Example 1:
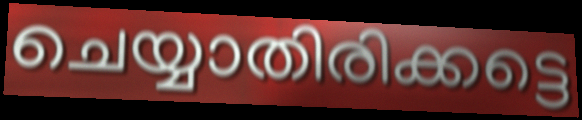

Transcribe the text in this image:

ചെയ്യാതിരിക്കട്ടെ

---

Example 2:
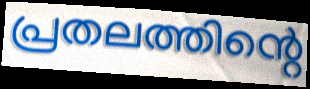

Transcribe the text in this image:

പ്രതലത്തിന്റെ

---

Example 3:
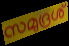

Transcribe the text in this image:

സമുദ്രശ്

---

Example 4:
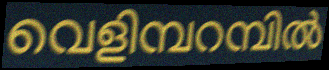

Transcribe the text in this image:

വെളിമ്പറമ്പിൽ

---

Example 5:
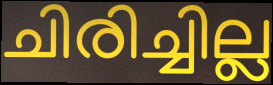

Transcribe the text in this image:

ചിരിച്ചില്ല